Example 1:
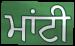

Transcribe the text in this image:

ਮਾਂਟੀ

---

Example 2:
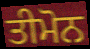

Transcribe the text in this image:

ਤੀਮੋਨ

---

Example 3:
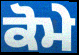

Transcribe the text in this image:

ਕੋਮੇ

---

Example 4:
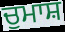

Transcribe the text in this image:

ਚੁਮਾਸ਼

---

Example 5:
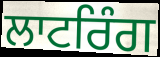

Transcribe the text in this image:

ਲਾਟਰਿੰਗ